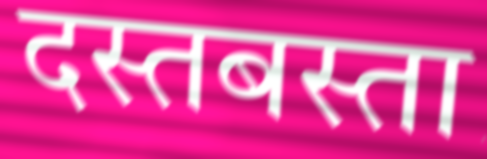
दस्तबस्ता